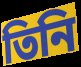
তিনি